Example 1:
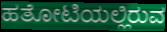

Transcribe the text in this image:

ಹತೋಟಿಯಲ್ಲಿರುವ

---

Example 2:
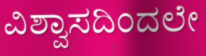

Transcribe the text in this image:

ವಿಶ್ವಾಸದಿಂದಲೇ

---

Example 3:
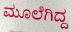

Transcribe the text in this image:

ಮೂಲೆಗಿದ್ದ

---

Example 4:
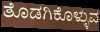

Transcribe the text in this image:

ತೊಡಗಿಕೊಳ್ಳುವ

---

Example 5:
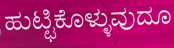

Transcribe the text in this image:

ಹುಟ್ಟಿಕೊಳ್ಳುವುದೂ